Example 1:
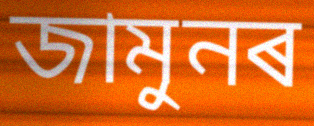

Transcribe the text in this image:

জামুনৰ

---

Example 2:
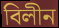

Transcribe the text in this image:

বিলীন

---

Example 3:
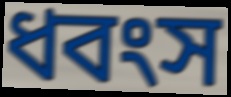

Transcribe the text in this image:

ধবংস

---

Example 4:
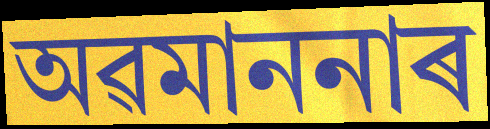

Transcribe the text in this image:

অৱমাননাৰ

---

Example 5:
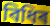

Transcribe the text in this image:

বিধিৰ